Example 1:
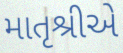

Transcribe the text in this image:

માતૃશ્રીએ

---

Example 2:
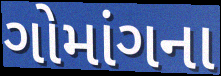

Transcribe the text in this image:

ગોમાંગના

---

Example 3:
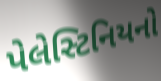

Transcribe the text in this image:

પેલેસ્ટિનિયનો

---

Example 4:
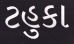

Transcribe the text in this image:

ટહુકા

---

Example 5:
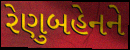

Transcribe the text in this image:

રેણુબહેનને